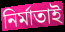
নিৰ্মাতাই